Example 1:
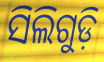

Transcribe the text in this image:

ସିଲିଗୁଡ଼ି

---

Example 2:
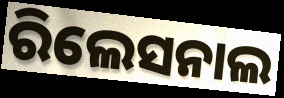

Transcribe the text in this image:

ରିଲେସନାଲ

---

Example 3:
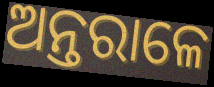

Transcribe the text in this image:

ଅନ୍ତରାଳେ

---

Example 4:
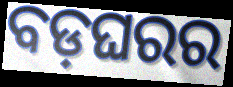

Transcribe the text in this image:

ବଡ଼ଘରର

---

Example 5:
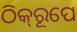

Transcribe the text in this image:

ଠିକ୍‍ରୂପେ